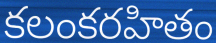
కలంకరహితం